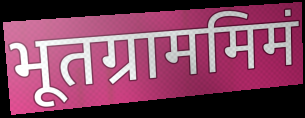
भूतग्राममिमं